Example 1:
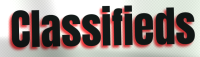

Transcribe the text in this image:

Classifieds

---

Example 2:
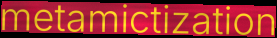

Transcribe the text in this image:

metamictization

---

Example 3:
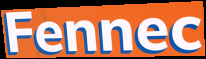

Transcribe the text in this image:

Fennec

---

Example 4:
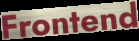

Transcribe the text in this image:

Frontend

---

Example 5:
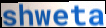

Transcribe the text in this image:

shweta